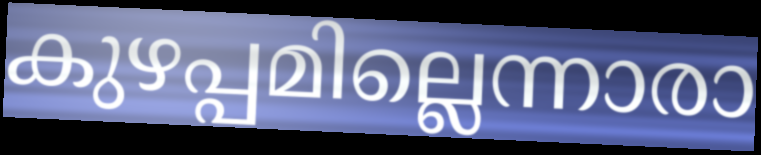
കുഴപ്പമില്ലെന്നാരാ